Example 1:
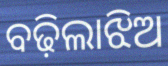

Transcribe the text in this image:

ବଢ଼ିଲାଝିଅ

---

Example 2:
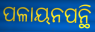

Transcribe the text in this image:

ପଳାୟନପନ୍ଥି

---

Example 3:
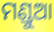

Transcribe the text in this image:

ମଣ୍ଡୁଆ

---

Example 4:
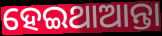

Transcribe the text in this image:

ହେଇଥାଆନ୍ତା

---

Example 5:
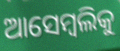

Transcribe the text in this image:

ଆସେମ୍ବଲିକୁ